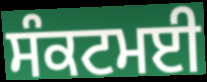
ਸੰਕਟਮਈ